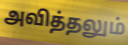
அவித்தலும்